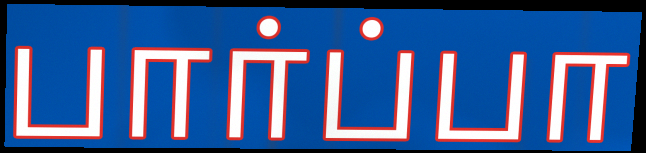
பார்ப்பா